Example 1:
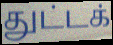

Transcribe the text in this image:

துட்டக்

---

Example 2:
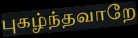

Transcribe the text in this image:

புகழ்ந்தவாறே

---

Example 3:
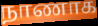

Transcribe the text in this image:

நாணாக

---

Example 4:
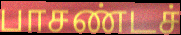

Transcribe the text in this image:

பாசண்டச்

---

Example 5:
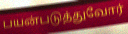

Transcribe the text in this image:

பயன்படுத்துவோர்